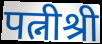
पत्नीश्री